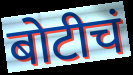
बोटीचं